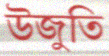
উজুতি